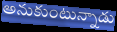
అనుకుంటున్నాడు